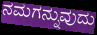
ನಮಗನ್ನುವುದು